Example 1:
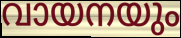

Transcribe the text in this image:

വായനയും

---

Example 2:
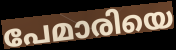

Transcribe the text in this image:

പേമാരിയെ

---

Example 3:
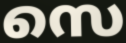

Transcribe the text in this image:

സെ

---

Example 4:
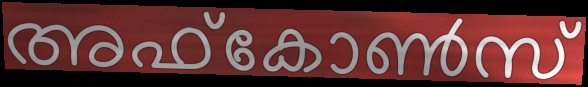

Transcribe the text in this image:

അഫ്കോൺസ്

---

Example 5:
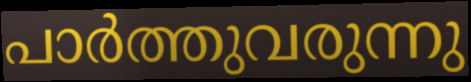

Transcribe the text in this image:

പാർത്തുവരുന്നു